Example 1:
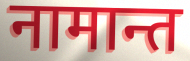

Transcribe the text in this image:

नामान्त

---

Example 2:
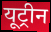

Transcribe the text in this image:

यूट्रीन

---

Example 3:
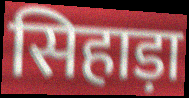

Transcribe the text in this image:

सिहाड़ा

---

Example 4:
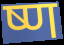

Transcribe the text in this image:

ष्ण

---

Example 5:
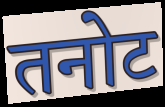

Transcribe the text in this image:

तनोट